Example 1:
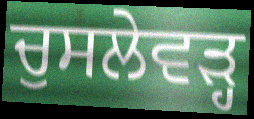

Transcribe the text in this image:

ਚੁਸਲੇਵੜ੍ਹ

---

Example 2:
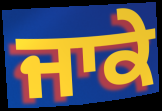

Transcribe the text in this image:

ਜਾਕੇ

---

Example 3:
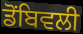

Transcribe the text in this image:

ਡੋਂਬਿਵਲੀ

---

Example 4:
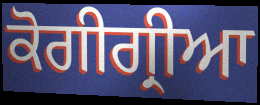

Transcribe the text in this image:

ਕੋਗੀਗ੍ਰੀਆ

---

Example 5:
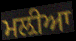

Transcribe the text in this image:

ਮਲ਼ੀਆ